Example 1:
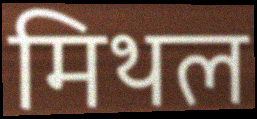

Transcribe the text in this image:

मिथल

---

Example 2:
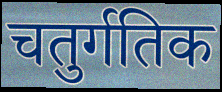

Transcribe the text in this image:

चतुर्गतिक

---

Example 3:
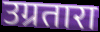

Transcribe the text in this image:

उग्रतारा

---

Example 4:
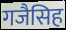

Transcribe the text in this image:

गजैसिह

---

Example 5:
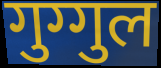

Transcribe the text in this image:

गुग्‍गुल